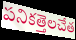
పనికత్తెలచేత